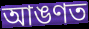
আঙণত